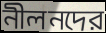
নীলনদের